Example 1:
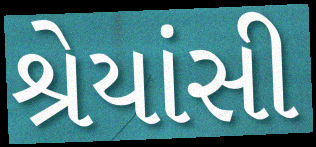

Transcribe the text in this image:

શ્રેયાંસી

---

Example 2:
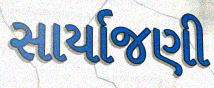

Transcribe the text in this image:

સાર્યાજણી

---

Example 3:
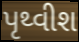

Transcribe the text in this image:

પૃથ્વીશ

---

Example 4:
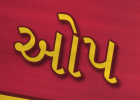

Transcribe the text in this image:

ઓપ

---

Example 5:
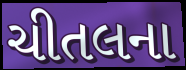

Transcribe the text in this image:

ચીતલના